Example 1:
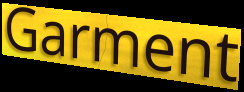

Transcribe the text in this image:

Garment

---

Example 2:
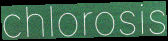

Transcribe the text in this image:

chlorosis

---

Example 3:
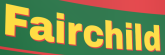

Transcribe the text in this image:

Fairchild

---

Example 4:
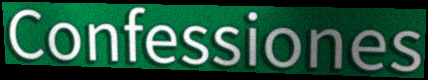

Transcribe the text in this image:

Confessiones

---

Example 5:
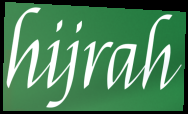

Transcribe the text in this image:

hijrah